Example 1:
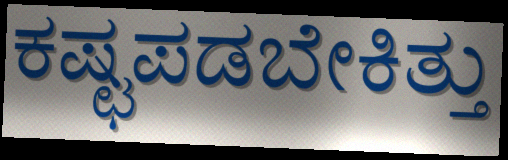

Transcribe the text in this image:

ಕಷ್ಟಪಡಬೇಕಿತ್ತು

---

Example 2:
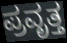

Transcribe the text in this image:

ಪ್ರವೃತ್ತ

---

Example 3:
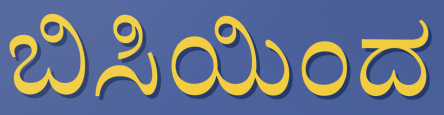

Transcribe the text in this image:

ಬಿಸಿಯಿಂದ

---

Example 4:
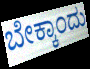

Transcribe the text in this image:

ಬೇಕ್ಕಾಂದು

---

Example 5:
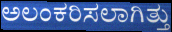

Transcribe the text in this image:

ಅಲಂಕರಿಸಲಾಗಿತ್ತು